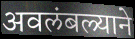
अवलंबल्याने